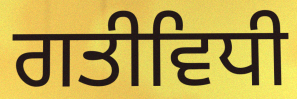
ਗਤੀਵਿਧੀ